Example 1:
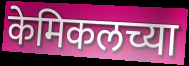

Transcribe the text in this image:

केमिकलच्या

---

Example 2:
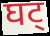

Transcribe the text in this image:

घट्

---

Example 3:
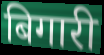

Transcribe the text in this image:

बिगारी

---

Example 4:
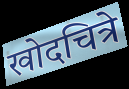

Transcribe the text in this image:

खोदचित्रे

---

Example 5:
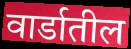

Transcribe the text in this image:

वार्डातील